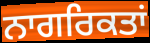
ਨਾਗਰਿਕਤਾਂ